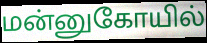
மன்னுகோயில்